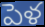
పెళ